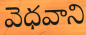
వెధవాని